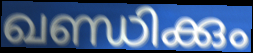
ഖണ്ഡിക്കും